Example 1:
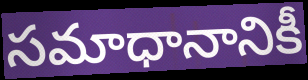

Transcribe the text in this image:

సమాధానానికీ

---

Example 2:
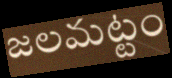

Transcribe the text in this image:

జలమట్టం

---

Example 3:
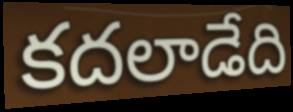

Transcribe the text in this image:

కదలాడేది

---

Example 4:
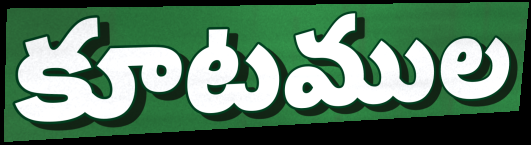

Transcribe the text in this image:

కూటముల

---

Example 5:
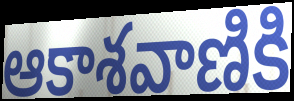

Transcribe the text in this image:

ఆకాశవాణికి